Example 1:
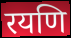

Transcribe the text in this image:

रयणि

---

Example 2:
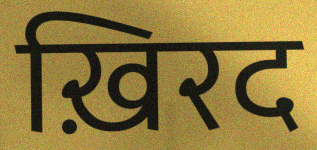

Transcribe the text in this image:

ख़िरद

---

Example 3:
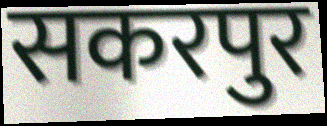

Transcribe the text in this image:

सकरपुर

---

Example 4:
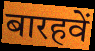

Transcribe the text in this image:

बारहवें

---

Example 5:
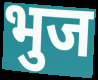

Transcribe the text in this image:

भुज